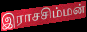
இராசசிம்மன்